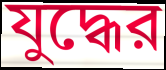
যুদ্ধের